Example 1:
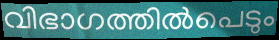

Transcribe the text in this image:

വിഭാഗത്തിൽപെടും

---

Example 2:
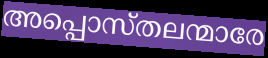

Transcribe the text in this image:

അപ്പൊസ്തലന്മാരേ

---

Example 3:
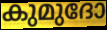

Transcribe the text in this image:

കുമുദോ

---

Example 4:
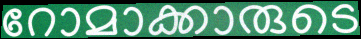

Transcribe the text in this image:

റോമാക്കാരുടെ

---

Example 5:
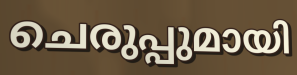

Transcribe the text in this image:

ചെരുപ്പുമായി